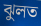
ঝুলত